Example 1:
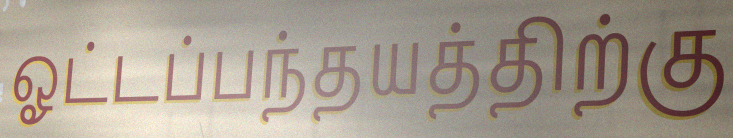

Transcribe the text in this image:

ஓட்டப்பந்தயத்திற்கு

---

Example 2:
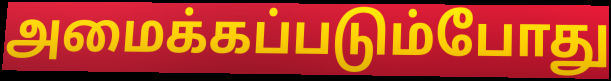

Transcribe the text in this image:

அமைக்கப்படும்போது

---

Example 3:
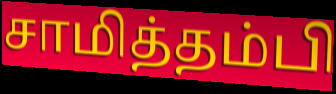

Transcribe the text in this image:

சாமித்தம்பி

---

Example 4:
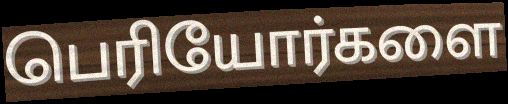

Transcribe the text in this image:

பெரியோர்களை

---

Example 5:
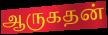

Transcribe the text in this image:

ஆருகதன்